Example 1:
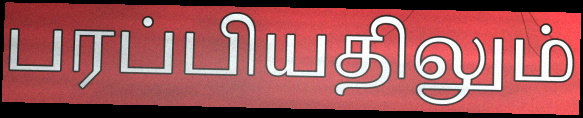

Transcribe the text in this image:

பரப்பியதிலும்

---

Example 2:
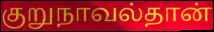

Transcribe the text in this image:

குறுநாவல்தான்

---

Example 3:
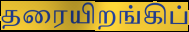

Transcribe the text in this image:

தரையிறங்கிப்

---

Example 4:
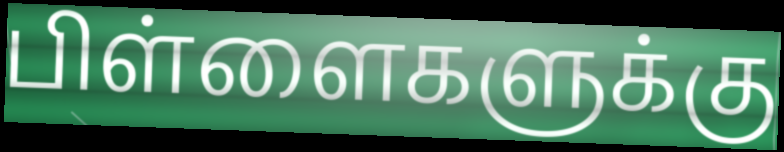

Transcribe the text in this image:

பிள்ளைகளுக்கு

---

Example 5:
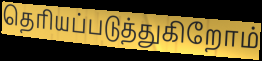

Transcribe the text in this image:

தெரியப்படுத்துகிறோம்